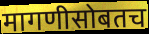
मागणीसोबतच